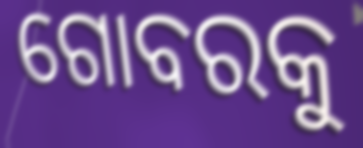
ଗୋବରକୁ